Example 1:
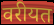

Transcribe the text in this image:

वरीयत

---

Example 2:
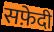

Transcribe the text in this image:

सफ़ेदी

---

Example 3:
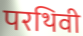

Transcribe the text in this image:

परथिवी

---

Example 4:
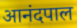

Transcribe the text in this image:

आनंदपाल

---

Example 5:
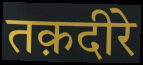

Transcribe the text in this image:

तक़दीरे